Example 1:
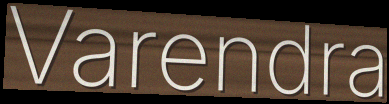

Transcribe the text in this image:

Varendra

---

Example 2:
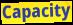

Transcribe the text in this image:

Capacity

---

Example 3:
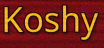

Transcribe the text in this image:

Koshy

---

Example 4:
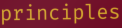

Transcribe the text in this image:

principles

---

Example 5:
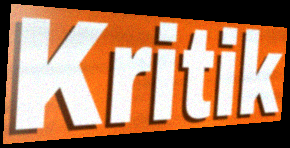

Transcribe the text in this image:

Kritik